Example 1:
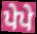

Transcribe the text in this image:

ਪੇਪੇ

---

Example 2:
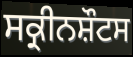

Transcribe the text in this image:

ਸਕ੍ਰੀਨਸ਼ੌਟਸ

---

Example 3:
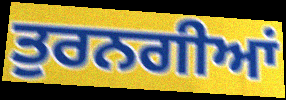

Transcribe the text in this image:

ਤੁਰਨਗੀਆਂ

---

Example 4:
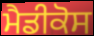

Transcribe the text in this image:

ਮੈਡੀਕੋਸ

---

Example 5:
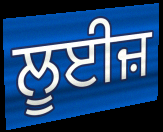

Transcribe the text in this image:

ਲੂਈਜ਼